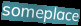
someplace